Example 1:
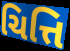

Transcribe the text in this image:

ચિત્તિ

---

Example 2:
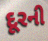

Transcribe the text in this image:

દૂરની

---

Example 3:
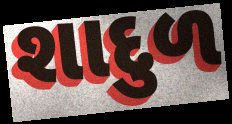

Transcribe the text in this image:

શાદુળ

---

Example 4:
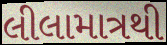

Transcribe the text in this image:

લીલામાત્રથી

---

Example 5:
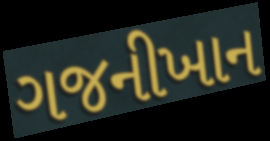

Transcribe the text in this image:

ગજનીખાન